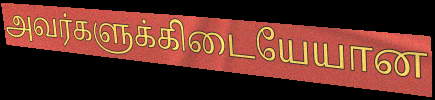
அவர்களுக்கிடையேயான